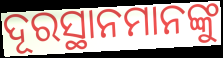
ଦୂରସ୍ଥାନମାନଙ୍କୁ